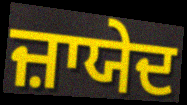
ਜ਼ਾਯੇਦ